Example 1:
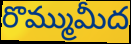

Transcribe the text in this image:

రొమ్ముమీద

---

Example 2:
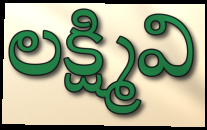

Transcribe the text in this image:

లక్ష్మివి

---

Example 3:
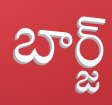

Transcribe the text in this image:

బార్జ్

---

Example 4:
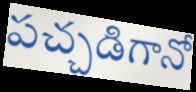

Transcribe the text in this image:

పచ్చడిగానో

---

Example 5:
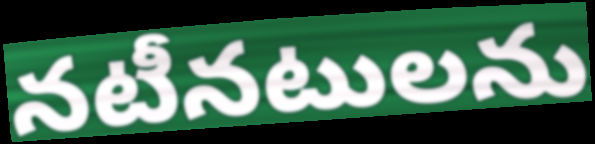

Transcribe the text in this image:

నటీనటులను